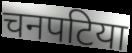
चनपटिया